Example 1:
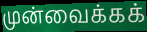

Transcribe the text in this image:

முன்வைக்கக்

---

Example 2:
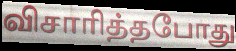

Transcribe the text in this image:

விசாரித்தபோது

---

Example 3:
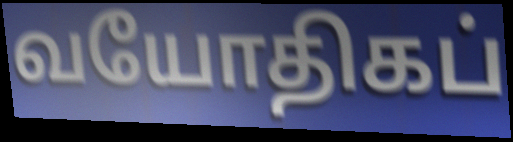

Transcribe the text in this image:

வயோதிகப்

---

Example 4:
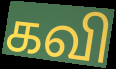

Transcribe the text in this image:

கவி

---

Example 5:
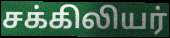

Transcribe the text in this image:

சக்கிலியர்